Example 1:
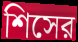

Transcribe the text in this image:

শিসের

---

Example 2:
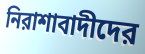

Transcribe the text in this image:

নিরাশাবাদীদের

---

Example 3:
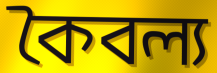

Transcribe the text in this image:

কৈবল্য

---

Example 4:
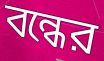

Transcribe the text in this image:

বন্ধের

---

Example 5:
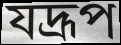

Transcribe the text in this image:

যদ্রূপ